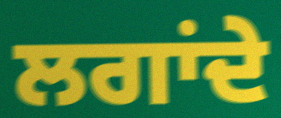
ਲਗਾਂਦੇ